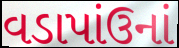
વડાપાંઉનાં